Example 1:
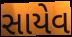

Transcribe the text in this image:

સાયેવ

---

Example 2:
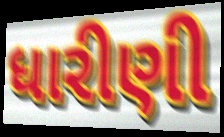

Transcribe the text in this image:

ધારીણી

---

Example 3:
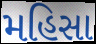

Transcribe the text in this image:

મહિસા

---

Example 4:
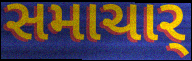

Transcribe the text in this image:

સમાચાર્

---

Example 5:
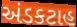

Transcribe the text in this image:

અંડકટાહ